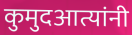
कुमुदआत्यांनी